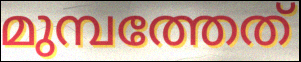
മുമ്പത്തേത്